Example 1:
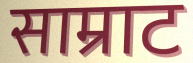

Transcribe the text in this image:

साम्राट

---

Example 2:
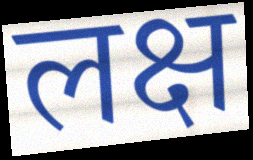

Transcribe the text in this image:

लक्ष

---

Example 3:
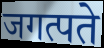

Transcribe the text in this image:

जगत्पते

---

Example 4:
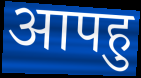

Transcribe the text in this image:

आपहु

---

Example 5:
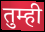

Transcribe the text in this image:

तुम्ही